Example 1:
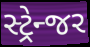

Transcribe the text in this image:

સ્ટ્રેન્જર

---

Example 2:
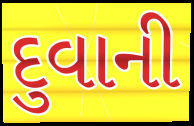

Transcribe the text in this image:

દુવાની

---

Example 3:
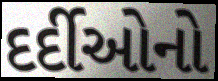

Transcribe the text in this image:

દર્દીઓનો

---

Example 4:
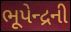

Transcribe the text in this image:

ભૂપેન્દ્રની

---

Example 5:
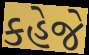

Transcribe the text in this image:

કહેજે